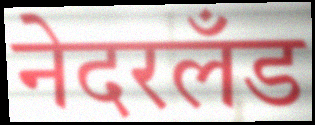
नेदरलँड